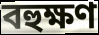
বহুক্ষণ